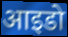
आइडो